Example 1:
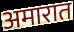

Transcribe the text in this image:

अमारात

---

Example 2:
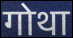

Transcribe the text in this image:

गोथा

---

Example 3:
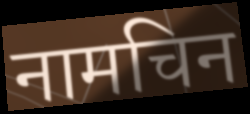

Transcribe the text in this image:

नामचिन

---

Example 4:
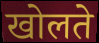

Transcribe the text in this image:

खोलते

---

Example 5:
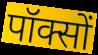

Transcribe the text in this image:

पॉक्सों